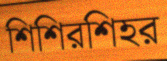
শিশিরশিহর